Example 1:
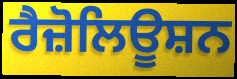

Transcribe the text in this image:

ਰੈਜ਼ੋਲਿਊਸ਼ਨ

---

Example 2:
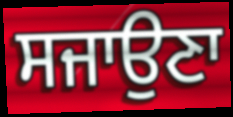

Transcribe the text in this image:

ਸਜਾਉਣਾ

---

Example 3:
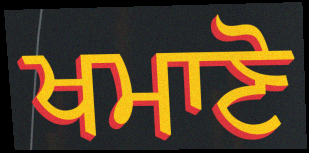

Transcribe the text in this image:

ਖਮਾਣੋ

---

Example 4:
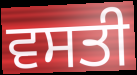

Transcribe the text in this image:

ਵਸਤੀ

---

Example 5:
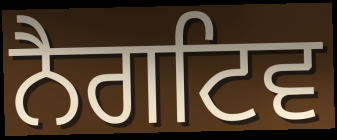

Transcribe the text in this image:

ਨੈਗਟਿਵ